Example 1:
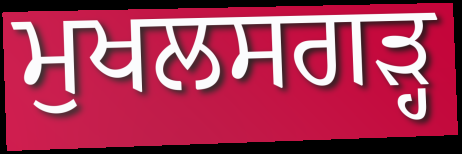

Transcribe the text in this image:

ਮੁਖਲਸਗੜ੍ਹ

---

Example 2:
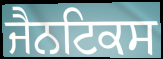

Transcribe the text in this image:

ਜੈਨਟਿਕਸ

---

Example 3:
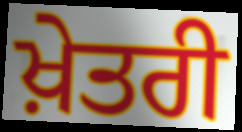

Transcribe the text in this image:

ਖ਼ੇਤਰੀ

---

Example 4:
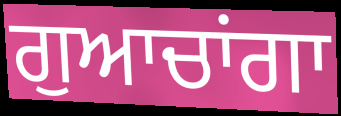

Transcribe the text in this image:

ਗੁਆਚਾਂਗਾ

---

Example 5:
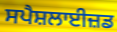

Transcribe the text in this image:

ਸਪੈਸ਼ਲਾਈਜ਼ਡ